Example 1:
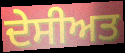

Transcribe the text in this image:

ਦੇਸੀਅਤ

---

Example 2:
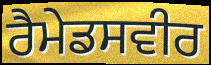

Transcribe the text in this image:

ਰੈਮੇਡਸਵੀਰ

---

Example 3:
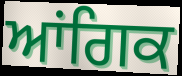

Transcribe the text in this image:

ਆਂਗਿਕ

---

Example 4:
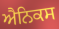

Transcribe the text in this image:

ਐਨਿਕਸ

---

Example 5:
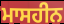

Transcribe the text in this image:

ਮਾਸਹੀਨ